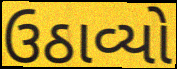
ઉઠાવ્યો